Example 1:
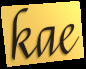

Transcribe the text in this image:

kae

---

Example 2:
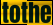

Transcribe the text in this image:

tothe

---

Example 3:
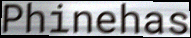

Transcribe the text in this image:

Phinehas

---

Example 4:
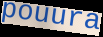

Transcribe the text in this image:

pouura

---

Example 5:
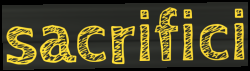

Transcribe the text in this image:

sacrifici